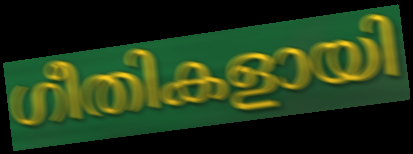
ഗീതികളായി